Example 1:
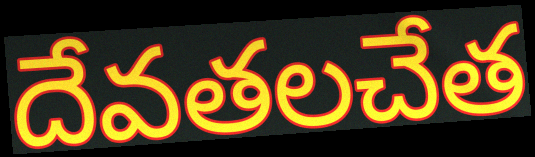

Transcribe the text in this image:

దేవతలచేత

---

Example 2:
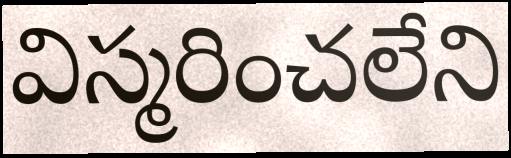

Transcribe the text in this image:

విస్మరించలేని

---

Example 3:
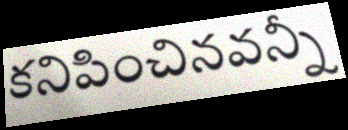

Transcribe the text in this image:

కనిపించినవన్నీ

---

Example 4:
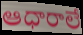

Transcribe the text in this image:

ఆధారాలే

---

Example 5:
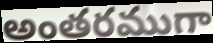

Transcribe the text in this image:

అంతరముగా